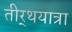
तीर्थयात्रा